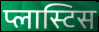
प्लास्टिस